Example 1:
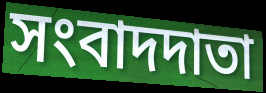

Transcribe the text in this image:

সংবাদদাতা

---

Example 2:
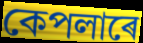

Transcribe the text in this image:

কেপলাৰে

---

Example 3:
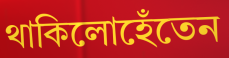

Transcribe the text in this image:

থাকিলোহেঁতেন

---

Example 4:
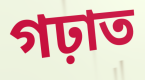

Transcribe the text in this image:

গঢ়াত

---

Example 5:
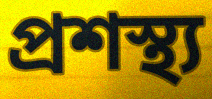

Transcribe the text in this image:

প্ৰশস্থ্য